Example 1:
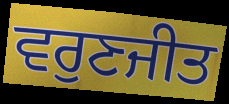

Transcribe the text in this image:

ਵਰੁਣਜੀਤ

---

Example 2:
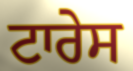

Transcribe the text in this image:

ਟਾਰੇਸ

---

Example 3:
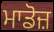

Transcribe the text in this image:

ਮਾਡੋਜ਼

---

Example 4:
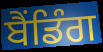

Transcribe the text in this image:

ਬੈਂਡਿੰਗ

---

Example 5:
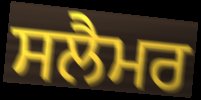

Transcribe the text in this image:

ਸਲੈਮਰ